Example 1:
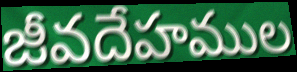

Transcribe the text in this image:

జీవదేహముల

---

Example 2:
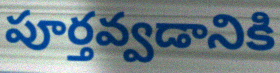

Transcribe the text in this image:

పూర్తవ్వడానికి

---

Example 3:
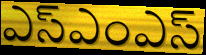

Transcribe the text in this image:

ఎస్ఎంఎస్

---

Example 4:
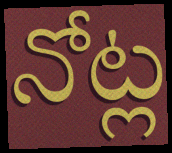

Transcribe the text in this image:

నోట్ల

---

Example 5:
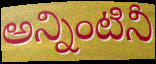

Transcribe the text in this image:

అన్నింటినీ